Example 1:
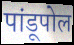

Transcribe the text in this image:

पांडूपोल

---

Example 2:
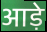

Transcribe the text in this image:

आड़े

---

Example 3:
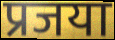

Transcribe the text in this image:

प्रजया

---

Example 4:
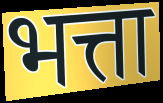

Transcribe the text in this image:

भत्ता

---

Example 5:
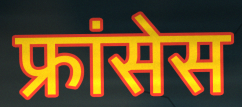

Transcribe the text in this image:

फ्रांसेस